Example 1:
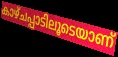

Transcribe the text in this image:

കാഴ്ചപ്പാടിലൂടെയാണ്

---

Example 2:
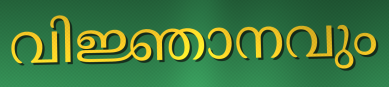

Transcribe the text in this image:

വിജ്ഞാനവും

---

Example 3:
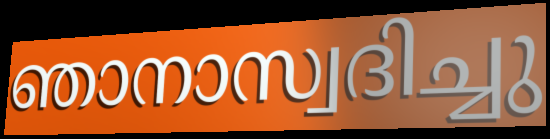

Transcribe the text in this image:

ഞാനാസ്വദിച്ചു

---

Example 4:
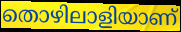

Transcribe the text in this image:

തൊഴിലാളിയാണ്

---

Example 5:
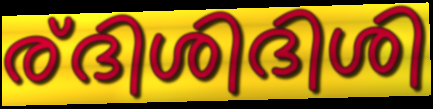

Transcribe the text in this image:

ര്ദിശിദിശി